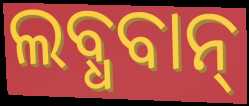
ଲବ୍ଧବାନ୍